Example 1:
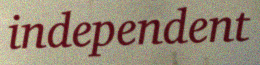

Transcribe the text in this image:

independent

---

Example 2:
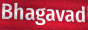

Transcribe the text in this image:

Bhagavad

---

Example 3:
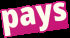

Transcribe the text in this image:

pays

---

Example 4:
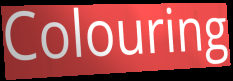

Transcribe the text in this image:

Colouring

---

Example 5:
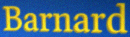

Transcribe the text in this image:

Barnard